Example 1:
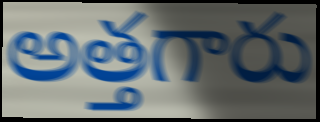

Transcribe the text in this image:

అత్తగారు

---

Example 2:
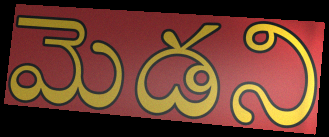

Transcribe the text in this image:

మెడని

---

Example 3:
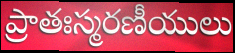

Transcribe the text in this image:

ప్రాతఃస్మరణీయులు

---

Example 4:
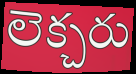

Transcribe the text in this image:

లెక్చరు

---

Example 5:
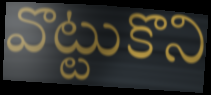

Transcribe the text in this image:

వొట్టుకొని